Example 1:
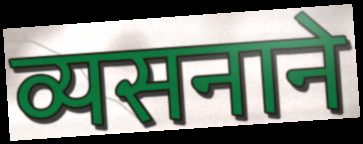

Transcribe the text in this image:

व्यसनाने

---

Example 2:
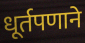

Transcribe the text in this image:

धूर्तपणाने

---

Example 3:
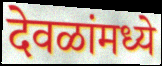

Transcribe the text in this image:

देवळांमध्ये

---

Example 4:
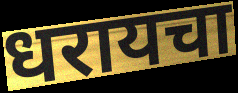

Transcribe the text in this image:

धरायचा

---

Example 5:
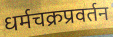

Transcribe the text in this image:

धर्मचक्रप्रवर्तन